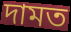
দামত